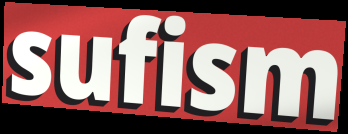
sufism